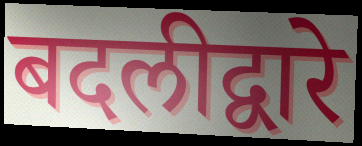
बदलीद्वारे